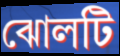
ঝোলটি